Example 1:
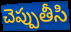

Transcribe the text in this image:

చెప్పుతీసి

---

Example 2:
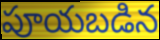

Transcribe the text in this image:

పూయబడిన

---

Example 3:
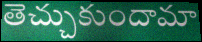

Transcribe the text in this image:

తెచ్చుకుందామా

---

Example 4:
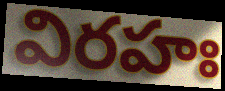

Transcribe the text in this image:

విరహః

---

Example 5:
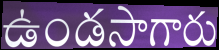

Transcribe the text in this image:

ఉండసాగారు